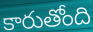
కారుతోంది